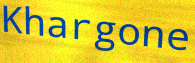
Khargone